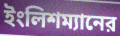
ইংলিশম্যানের